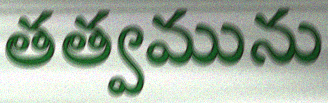
తత్వమును